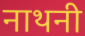
नाथनी